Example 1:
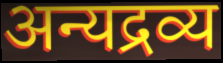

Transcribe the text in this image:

अन्यद्रव्य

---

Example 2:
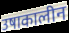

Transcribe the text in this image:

उषाकालीन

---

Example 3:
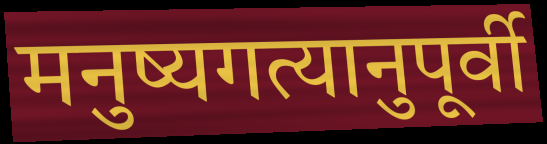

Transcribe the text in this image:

मनुष्यगत्यानुपूर्वी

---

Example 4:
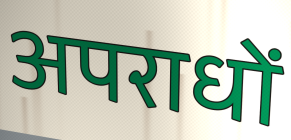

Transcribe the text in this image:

अपराधों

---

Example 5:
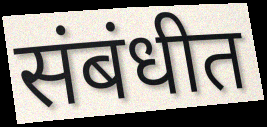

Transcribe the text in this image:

संबंधीत